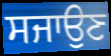
ਸਜਾਉਣ